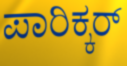
ಪಾರಿಕ್ಕರ್